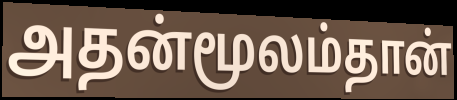
அதன்மூலம்தான்